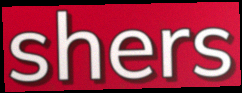
shers